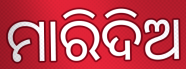
ମାରିଦିଅ